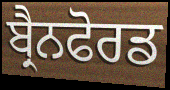
ਬ੍ਰੈਨਫੋਰਡ